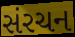
સંરચન